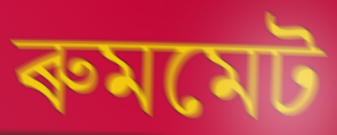
ৰুমমেট